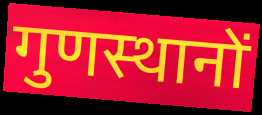
गुणस्थानों